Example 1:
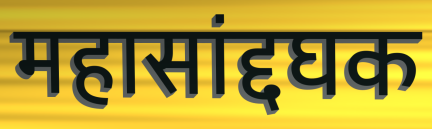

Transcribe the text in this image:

महासांद्दघक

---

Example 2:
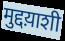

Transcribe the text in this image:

मुद्दय़ाशी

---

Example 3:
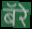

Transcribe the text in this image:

बॅरे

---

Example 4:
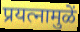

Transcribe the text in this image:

प्रयत्नामुळें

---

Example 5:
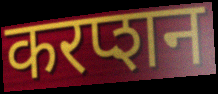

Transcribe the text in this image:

करप्शन